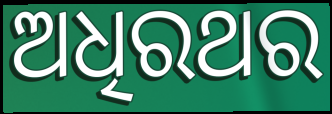
ଅଧିରଥର